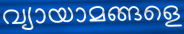
വ്യായാമങ്ങളെ